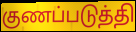
குணப்படுத்தி